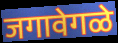
जगावेगळे